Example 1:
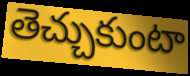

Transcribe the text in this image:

తెచ్చుకుంటా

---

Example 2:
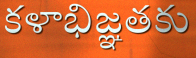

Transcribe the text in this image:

కళాభిజ్ఞతకు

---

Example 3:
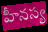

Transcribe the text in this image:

హీనస్య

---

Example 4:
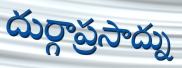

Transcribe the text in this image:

దుర్గాప్రసాద్ను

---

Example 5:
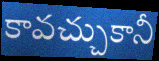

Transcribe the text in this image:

కావచ్చుకానీ